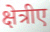
क्षेत्रीए